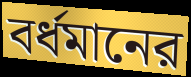
বর্ধমানের